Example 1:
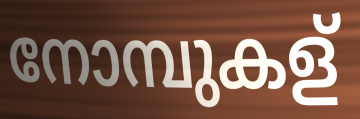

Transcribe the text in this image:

നോമ്പുകള്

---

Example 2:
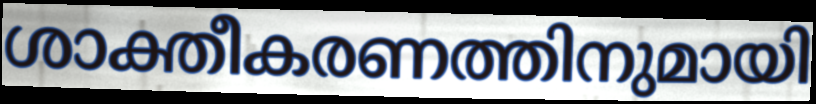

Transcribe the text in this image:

ശാക്തീകരണത്തിനുമായി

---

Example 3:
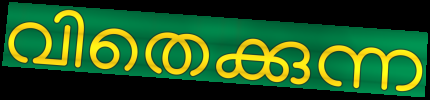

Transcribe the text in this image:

വിതെക്കുന്ന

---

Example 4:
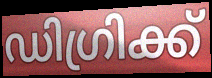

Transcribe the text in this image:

ഡിഗ്രിക്ക്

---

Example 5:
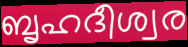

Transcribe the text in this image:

ബൃഹദീശ്വര